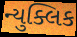
ન્યુક્લિક